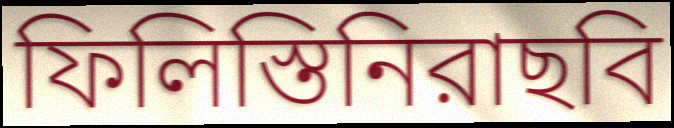
ফিলিস্তিনিরাছবি